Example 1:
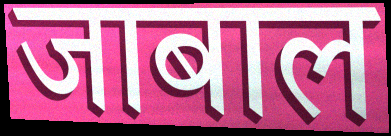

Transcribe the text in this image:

जाबाल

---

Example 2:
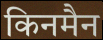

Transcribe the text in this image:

किनमैन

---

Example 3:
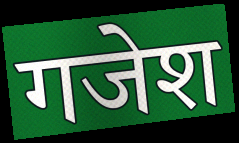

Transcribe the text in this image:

गजेश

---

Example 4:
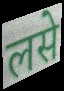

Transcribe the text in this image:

लसे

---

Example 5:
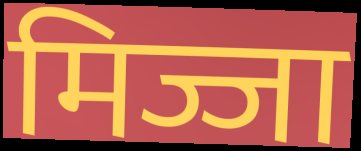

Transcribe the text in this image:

मिज्जा